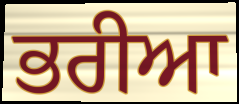
ਭਰੀਆ